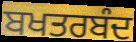
ਬਖਤਰਬੰਦ